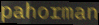
pahorman